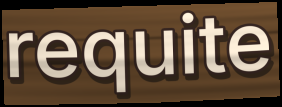
requite